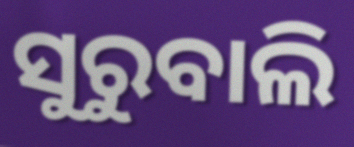
ସୁରୁବାଲି